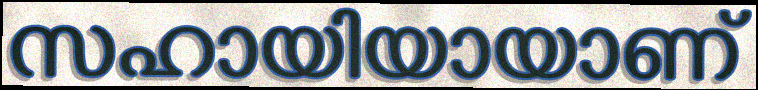
സഹായിയായാണ്